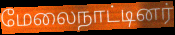
மேலைநாட்டினர்